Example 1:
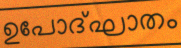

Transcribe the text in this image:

ഉപോദ്ഘാതം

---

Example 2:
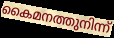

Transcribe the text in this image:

കൈമനത്തുനിന്ന്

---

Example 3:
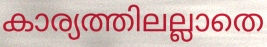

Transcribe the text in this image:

കാര്യത്തിലല്ലാതെ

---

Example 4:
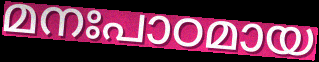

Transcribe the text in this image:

മനഃപാഠമായ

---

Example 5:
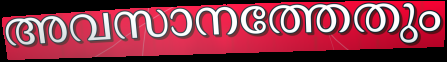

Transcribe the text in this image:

അവസാനത്തേതും